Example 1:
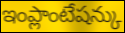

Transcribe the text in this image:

ఇంప్లాంటేషన్కు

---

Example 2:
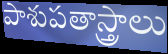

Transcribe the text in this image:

పాశుపతాస్త్రాలు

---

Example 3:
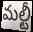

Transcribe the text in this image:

మల్టీ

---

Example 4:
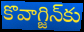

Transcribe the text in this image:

కొవాగ్జిన్‌కు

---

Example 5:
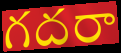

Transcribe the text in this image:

గదరా